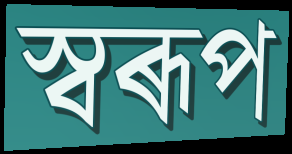
স্বৰূপ